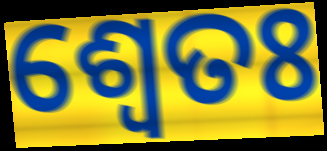
ଶ୍ଵେତଃ